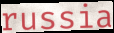
russia